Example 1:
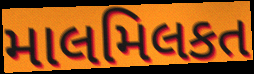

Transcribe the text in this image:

માલમિલકત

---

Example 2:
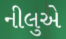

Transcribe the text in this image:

નીલુએ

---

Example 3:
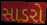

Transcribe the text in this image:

સાડરો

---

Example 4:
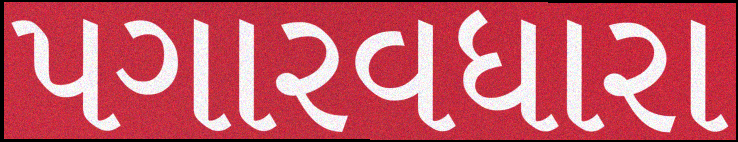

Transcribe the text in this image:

પગારવધારા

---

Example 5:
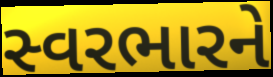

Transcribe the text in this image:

સ્વરભારને